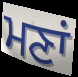
ਮਣਾਂ